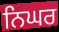
ਨਿਘਰ